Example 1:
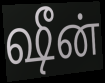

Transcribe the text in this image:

ஷீன்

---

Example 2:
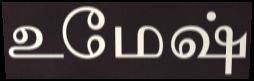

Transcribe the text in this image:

உமேஷ்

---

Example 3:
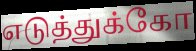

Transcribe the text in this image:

எடுத்துக்கோ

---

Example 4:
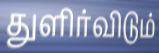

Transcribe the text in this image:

துளிர்விடும்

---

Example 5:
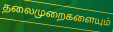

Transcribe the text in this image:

தலைமுறைகளையும்